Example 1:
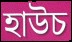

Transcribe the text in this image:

হাউচ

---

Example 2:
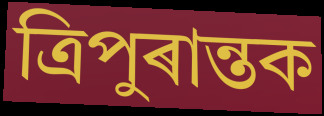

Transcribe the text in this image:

ত্ৰিপুৰান্তক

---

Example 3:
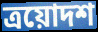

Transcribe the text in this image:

ত্ৰয়োদশ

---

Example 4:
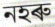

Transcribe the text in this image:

নহৰু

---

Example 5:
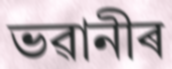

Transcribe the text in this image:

ভৱানীৰ